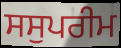
ਸਸੁਪਰੀਮ